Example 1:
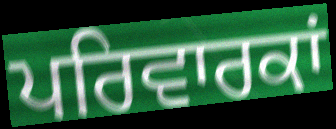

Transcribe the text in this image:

ਪਰਿਵਾਰਕਾਂ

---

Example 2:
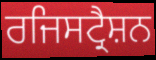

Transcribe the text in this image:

ਰਜਿਸਟ੍ਰੈਸ਼ਨ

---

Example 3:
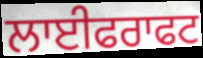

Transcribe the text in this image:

ਲਾਈਫਰਾਫਟ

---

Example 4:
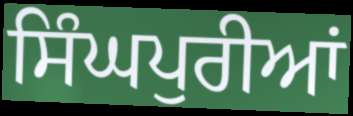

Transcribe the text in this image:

ਸਿੰਘਪੁਰੀਆਂ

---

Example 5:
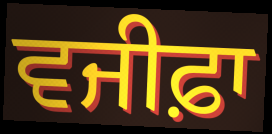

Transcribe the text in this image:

ਵਜੀਫ਼ਾ